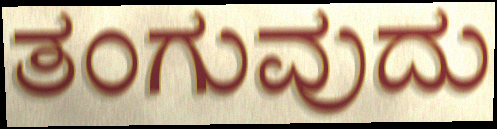
ತಂಗುವುದು